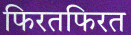
फिरतफिरत